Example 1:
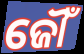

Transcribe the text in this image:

ଜୌଁ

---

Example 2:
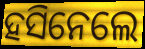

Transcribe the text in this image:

ହସିନେଲେ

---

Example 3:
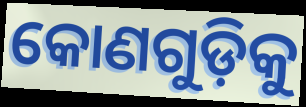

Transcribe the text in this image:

କୋଣଗୁଡ଼ିକୁ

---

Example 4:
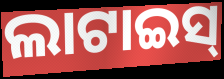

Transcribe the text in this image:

ଲାଟାଇସ୍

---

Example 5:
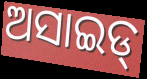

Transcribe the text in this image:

ଅସାଇଡ୍